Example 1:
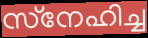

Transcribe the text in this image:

സ്‌നേഹിച്ച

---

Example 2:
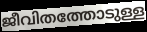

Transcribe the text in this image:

ജീവിതത്തോടുള്ള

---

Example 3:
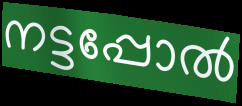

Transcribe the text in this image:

നട്ടപ്പോൽ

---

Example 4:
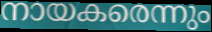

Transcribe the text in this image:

നായകരെന്നും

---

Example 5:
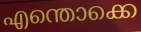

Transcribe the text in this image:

എന്തൊക്കെ